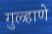
गुल्हाणे